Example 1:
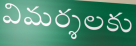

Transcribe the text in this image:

విమర్శలకు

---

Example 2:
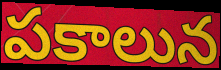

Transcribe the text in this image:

పకాలున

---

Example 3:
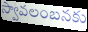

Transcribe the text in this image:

స్వావలంబనకు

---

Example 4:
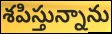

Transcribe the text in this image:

శపిస్తున్నాను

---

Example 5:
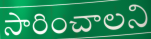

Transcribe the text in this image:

సారించాలని